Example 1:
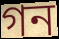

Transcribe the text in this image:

গন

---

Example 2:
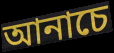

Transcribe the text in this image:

আনাচে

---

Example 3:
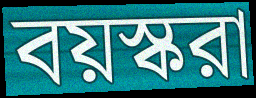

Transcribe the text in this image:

বয়স্করা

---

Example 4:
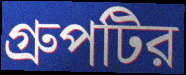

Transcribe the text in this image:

গ্রুপটির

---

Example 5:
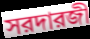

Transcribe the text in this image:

সরদারজী